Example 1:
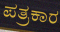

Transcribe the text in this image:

ಪತ್ರಕಾರ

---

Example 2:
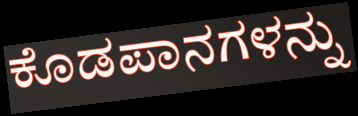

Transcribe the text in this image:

ಕೊಡಪಾನಗಳನ್ನು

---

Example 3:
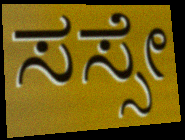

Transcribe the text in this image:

ಸಸ್ಸೇ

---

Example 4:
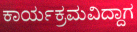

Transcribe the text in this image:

ಕಾರ್ಯಕ್ರಮವಿದ್ದಾಗ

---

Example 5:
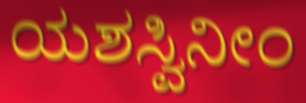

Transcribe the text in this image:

ಯಶಸ್ವಿನೀಂ